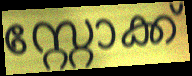
സ്റ്റോക്ക്